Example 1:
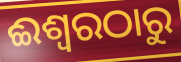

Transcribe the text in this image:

ଈଶ୍ୱରଠାରୁ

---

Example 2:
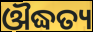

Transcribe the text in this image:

ଔଦ୍ଧତ୍ୟ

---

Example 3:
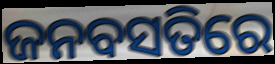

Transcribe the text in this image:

ଜନବସତିରେ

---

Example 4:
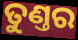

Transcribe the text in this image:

ତୁଣ୍ତର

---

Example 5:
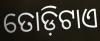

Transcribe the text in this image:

ତୋଡ଼ିଟାଏ